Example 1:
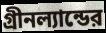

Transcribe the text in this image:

গ্রীনল্যান্ডের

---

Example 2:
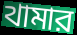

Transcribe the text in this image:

থামার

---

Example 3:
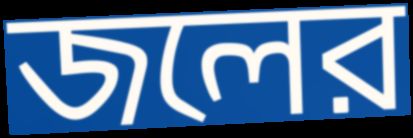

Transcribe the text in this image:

জলের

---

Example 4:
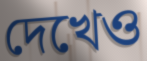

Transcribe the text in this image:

দেখেও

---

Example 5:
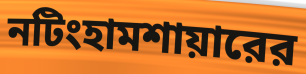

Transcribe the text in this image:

নটিংহামশায়ারের